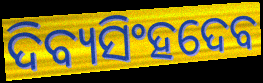
ଦିବ୍ୟସିଂହଦେବ